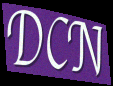
DCN